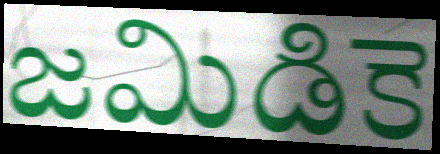
జమిడికె